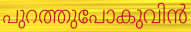
പുറത്തുപോകുവിൻ